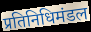
प्रतिनिधिमंडल